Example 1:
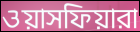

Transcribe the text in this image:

ওয়াসফিয়ারা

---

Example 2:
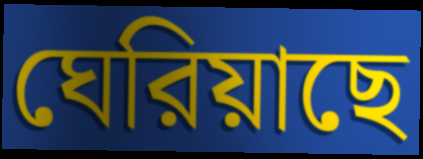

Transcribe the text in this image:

ঘেরিয়াছে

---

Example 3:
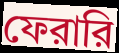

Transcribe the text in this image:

ফেরারি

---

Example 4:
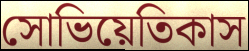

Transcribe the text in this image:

সোভিয়েতিকাস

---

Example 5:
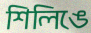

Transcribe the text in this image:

শিলিঙে